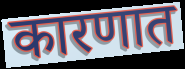
कारणात